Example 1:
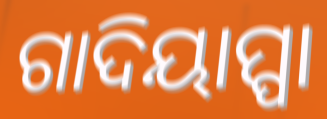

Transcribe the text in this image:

ଗାଦିୟାପ୍ପା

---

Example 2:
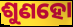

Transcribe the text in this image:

ଶୁଣହୋ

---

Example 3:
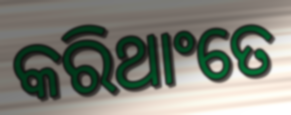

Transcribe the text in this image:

କରିଥାଂତେ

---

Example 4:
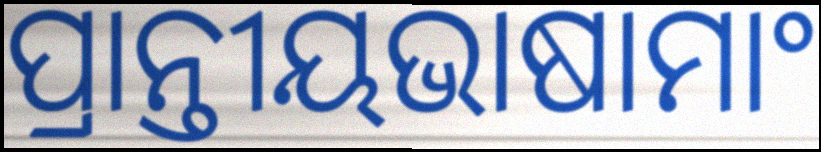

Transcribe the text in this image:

ପ୍ରାନ୍ତୀୟଭାଷାମାଂ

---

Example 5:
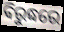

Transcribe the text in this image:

ବିରୁଦ୍ଧରେ